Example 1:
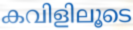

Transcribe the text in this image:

കവിളിലൂടെ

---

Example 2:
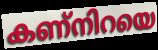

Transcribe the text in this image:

കണ്നിറയെ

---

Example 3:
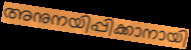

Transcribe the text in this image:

അനുനയിപ്പിക്കാനായി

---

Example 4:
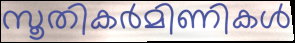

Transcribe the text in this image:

സൂതികർമിണികൾ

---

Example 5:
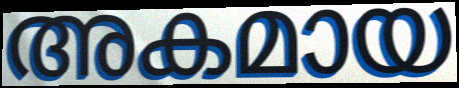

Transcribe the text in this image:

അകമായ